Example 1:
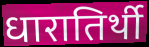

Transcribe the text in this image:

धारातिर्थी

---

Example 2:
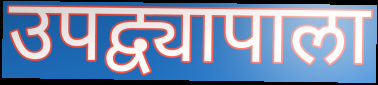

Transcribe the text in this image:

उपद्व्यापाला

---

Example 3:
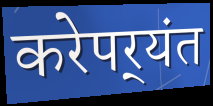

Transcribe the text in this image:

करेपर्यंत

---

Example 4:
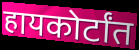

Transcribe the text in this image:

हायकोर्टांत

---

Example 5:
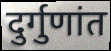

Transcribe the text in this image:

दुर्गुणांत